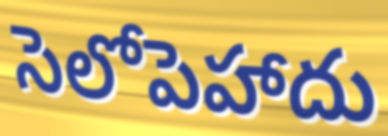
సెలోపెహాదు